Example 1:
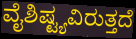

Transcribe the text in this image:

ವೈಶಿಷ್ಟ್ಯವಿರುತ್ತದೆ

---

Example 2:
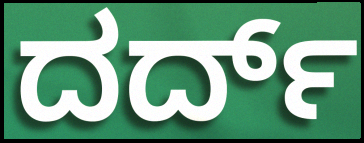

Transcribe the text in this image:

ದರ್ದ್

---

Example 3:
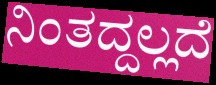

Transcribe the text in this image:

ನಿಂತದ್ದಲ್ಲದೆ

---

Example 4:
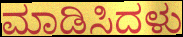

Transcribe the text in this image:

ಮಾಡಿಸಿದಳು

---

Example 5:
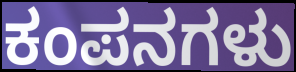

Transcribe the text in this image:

ಕಂಪನಗಳು